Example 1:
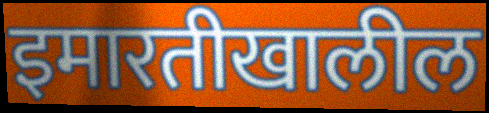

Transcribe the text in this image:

इमारतीखालील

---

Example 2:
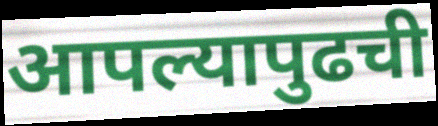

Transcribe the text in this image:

आपल्यापुढची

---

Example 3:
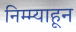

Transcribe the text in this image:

निम्म्याहून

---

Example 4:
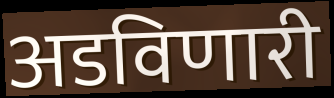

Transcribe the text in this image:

अडविणारी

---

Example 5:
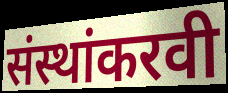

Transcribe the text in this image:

संस्थांकरवी